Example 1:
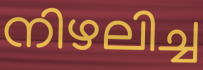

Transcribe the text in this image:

നിഴലിച്ച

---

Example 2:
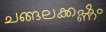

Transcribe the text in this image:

ചങ്ങലക്കഷ്ണം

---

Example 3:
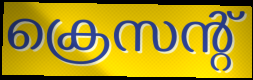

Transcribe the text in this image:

ക്രെസന്റ്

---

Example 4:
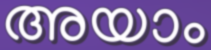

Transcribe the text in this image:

അയാം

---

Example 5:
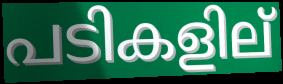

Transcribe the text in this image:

പടികളില്